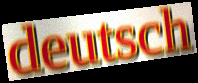
deutsch